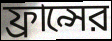
ফ্রান্সের